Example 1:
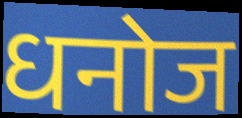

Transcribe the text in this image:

धनोज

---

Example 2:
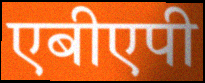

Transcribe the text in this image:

एबीएपी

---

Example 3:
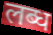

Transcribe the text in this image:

लब्ध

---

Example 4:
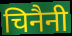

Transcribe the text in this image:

चिनैनी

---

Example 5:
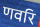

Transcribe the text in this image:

णवरि